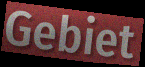
Gebiet